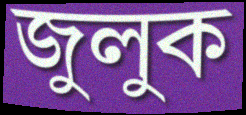
জুলুক